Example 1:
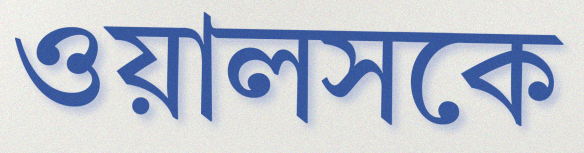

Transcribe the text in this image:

ওয়ালসকে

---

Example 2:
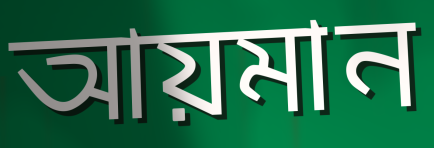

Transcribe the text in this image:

আয়মান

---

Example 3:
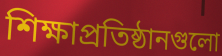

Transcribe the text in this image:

শিক্ষাপ্রতিষ্ঠানগুলো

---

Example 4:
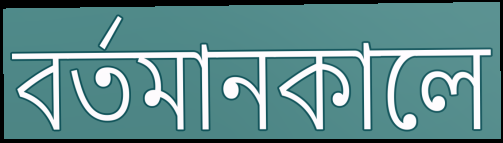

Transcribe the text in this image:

বর্তমানকালে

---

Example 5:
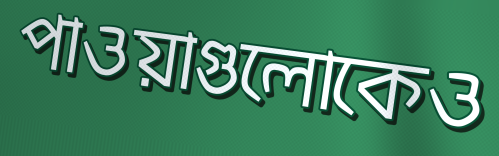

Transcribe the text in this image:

পাওয়াগুলোকেও